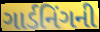
ગાર્ડનિંગની